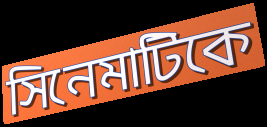
সিনেমাটিকে